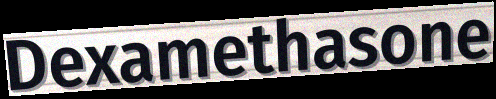
Dexamethasone